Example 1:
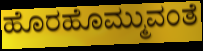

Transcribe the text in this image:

ಹೊರಹೊಮ್ಮುವಂತೆ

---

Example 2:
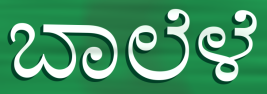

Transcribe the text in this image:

ಬಾಲೆಳೆ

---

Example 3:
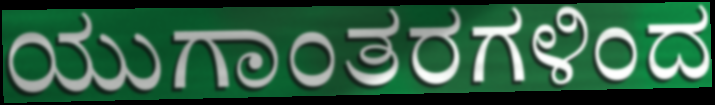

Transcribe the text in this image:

ಯುಗಾಂತರಗಳಿಂದ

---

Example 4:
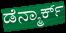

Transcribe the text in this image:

ಡೆನ್ಮಾರ್ಕ್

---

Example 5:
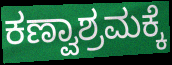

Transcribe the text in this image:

ಕಣ್ವಾಶ್ರಮಕ್ಕೆ